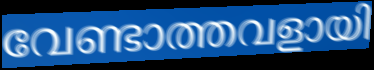
വേണ്ടാത്തവളായി